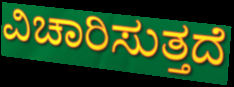
ವಿಚಾರಿಸುತ್ತದೆ